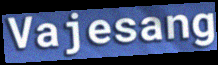
Vajesang